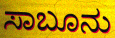
ಸಾಬೂನು